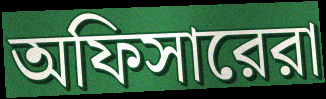
অফিসারেরা